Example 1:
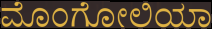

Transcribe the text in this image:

ಮೊಂಗೋಲಿಯಾ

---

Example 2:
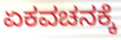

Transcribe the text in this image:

ಏಕವಚನಕ್ಕೆ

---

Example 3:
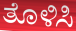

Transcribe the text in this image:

ತೊಳಿಸಿ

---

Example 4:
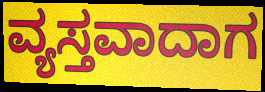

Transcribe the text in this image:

ವ್ಯಸ್ತವಾದಾಗ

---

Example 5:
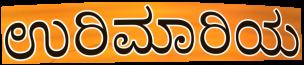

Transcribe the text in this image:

ಉರಿಮಾರಿಯ